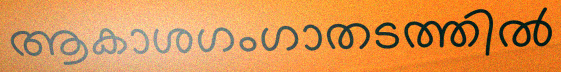
ആകാശഗംഗാതടത്തിൽ